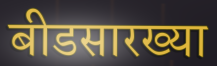
बीडसारख्या